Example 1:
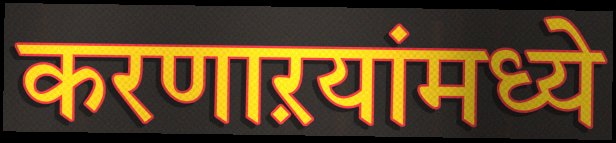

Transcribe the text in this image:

करणाऱयांमध्ये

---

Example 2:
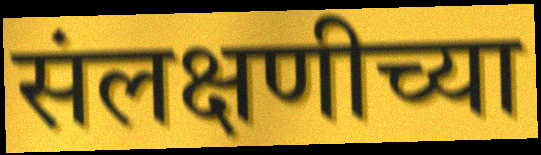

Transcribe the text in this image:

संलक्षणीच्या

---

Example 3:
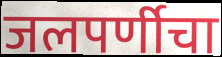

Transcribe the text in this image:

जलपर्णीचा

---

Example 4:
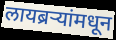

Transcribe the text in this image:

लायब्रऱ्यांमधून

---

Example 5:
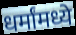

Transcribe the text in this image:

धर्मांमध्ये